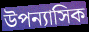
উপন্যাসিক